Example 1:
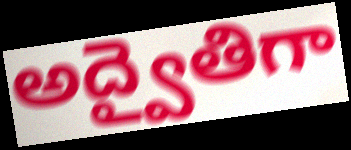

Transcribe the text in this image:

అద్వైతిగా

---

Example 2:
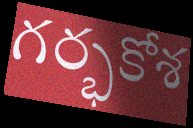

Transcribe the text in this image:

గర్భకోశ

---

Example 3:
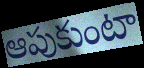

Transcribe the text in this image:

ఆపుకుంటా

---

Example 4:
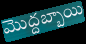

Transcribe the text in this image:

మొద్దబ్బాయి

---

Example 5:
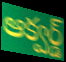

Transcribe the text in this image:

ఆక్వర్డ్